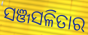
ସଞ୍ଜସଳିତାର